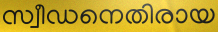
സ്വീഡനെതിരായ